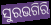
ସୁରଭଗିରି